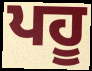
ਪਹੂ